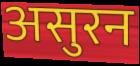
असुरन